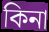
কিনা